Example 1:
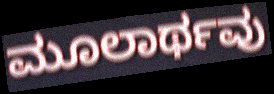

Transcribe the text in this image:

ಮೂಲಾರ್ಥವು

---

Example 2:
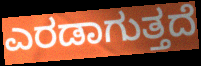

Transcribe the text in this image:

ಎರಡಾಗುತ್ತದೆ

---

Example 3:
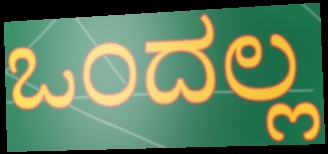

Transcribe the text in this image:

ಒಂದಲ್ಲ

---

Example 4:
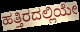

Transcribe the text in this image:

ಹತ್ತಿರದಲ್ಲಿಯೇ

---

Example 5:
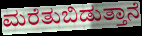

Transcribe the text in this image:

ಮರೆತುಬಿಡುತ್ತಾನೆ